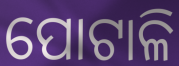
ପୋଟାଳି